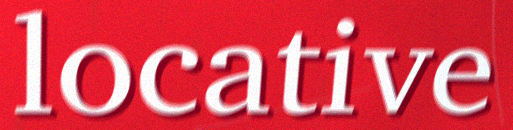
locative